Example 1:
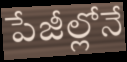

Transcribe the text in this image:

పేజీల్లోనే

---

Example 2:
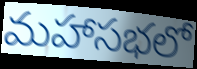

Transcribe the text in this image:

మహాసభలో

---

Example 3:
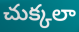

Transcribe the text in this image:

చుక్కలా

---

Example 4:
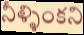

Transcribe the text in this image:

నీళ్ళింకని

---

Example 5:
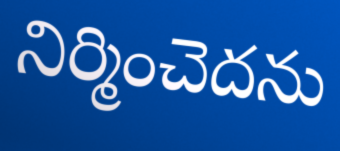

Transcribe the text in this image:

నిర్మించెదను